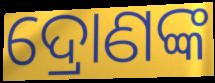
ଦ୍ରୋଣଙ୍କ